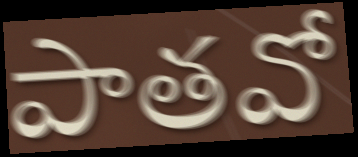
పాతవో